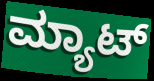
ಮ್ಯಾಟ್